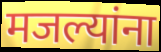
मजल्यांना